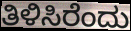
ತಿಳಿಸಿರೆಂದು